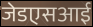
जेडएसआई